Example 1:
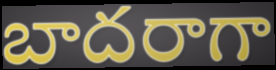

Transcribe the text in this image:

బాదరాగా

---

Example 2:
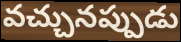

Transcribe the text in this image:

వచ్చునప్పుడు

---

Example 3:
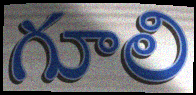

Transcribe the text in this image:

గూలి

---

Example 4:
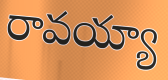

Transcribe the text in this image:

రావయ్యా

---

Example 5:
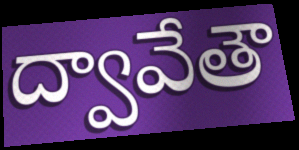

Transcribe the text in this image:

ద్వావేతౌ